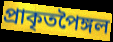
প্ৰাকৃতপৈঙ্গল